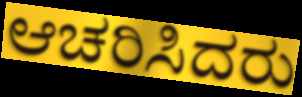
ಆಚರಿಸಿದರು